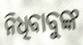
ନିଧିବାବୁଙ୍କ